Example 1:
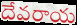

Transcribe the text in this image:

దేవరాయ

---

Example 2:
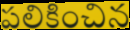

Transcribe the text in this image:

పలికించిన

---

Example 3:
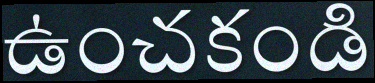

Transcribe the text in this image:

ఉంచకండి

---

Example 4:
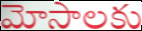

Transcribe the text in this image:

మోసాలకు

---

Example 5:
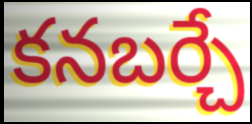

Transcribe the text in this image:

కనబర్చే